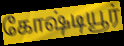
கோஷ்டியூர்